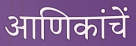
आणिकांचें